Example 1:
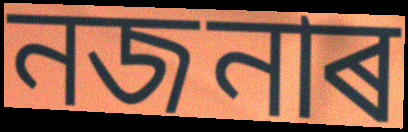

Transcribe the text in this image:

নজনাৰ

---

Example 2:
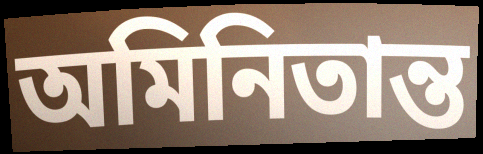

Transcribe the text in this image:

অমিনিতান্ত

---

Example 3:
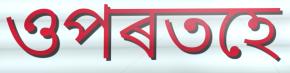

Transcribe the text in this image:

ওপৰতহে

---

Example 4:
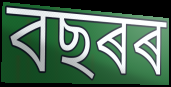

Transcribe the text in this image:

বছৰৰ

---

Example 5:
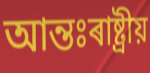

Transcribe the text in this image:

আন্তঃৰাষ্ট্ৰীয়